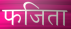
फजिता